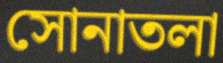
সোনাতলা